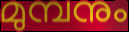
മുമ്പനും